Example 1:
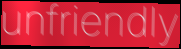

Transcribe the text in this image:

unfriendly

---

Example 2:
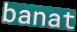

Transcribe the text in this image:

banat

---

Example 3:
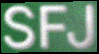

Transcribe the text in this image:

SFJ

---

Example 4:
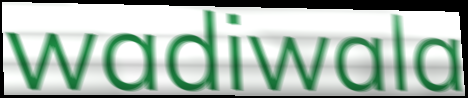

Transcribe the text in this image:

wadiwala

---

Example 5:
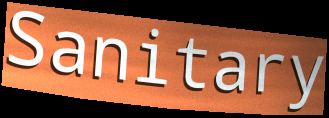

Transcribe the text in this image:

Sanitary